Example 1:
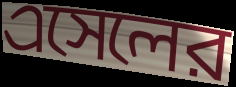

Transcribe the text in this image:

এসেলের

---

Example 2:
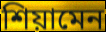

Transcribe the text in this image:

শিয়ামেন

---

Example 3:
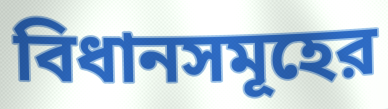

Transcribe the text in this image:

বিধানসমূহের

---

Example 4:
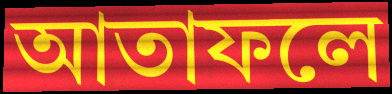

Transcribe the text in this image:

আতাফলে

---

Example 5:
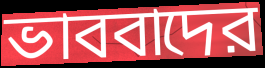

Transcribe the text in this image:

ভাববাদের